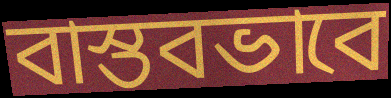
বাস্তবভাবে